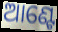
ଆଣ୍ଟେ